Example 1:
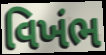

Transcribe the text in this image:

વિખંભ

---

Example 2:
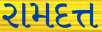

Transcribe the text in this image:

રામદત્ત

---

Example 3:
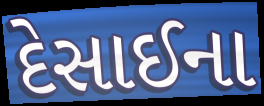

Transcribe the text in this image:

દેસાઈના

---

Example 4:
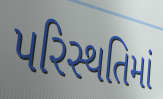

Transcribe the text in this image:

પરિસ્થતિમાં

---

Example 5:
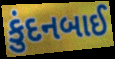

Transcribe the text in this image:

કુંદનબાઈ